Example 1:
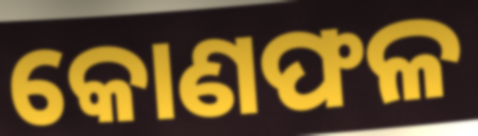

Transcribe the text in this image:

କୋଣଫଳ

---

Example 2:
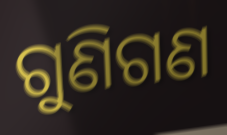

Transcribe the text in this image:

ଗୁଣିଗଣ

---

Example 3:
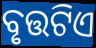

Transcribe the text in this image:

ବୃତ୍ତଟିଏ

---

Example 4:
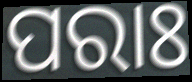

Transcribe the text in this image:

ପରାଃ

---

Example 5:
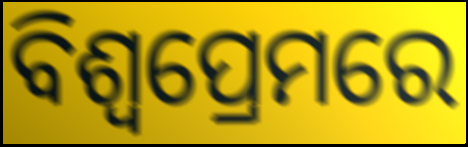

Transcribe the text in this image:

ବିଶ୍ୱପ୍ରେମରେ